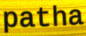
patha